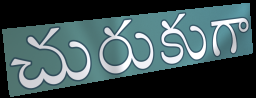
చురుకుగా